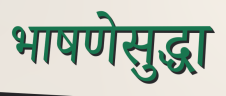
भाषणेसुद्धा